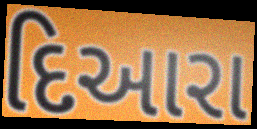
દિઆરા